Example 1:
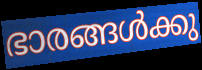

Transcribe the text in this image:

ഭാരങ്ങൾക്കു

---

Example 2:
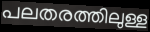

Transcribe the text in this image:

പലതരത്തിലുള്ള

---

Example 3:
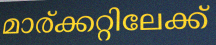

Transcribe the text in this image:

മാര്ക്കറ്റിലേക്ക്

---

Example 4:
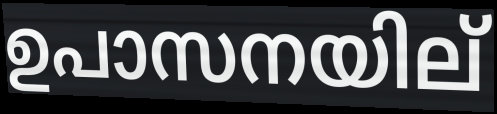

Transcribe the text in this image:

ഉപാസനയില്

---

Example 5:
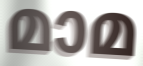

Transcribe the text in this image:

മാമ